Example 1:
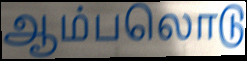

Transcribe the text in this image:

ஆம்பலொடு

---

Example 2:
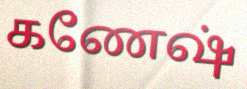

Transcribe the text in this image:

கணேஷ்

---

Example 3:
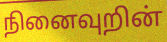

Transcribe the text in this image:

நினைவுறின்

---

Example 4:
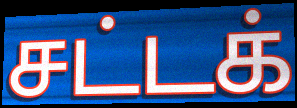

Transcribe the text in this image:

சட்டக்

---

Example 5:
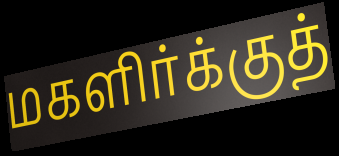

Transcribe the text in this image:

மகளிர்க்குத்